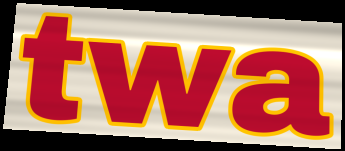
twa